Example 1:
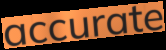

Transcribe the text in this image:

accurate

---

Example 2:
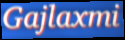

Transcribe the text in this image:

Gajlaxmi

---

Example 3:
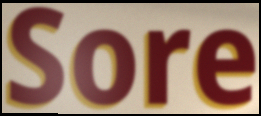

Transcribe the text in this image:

Sore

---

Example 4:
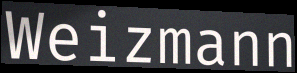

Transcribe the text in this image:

Weizmann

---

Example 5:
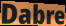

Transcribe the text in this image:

Dabre